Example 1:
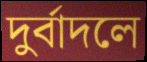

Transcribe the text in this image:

দুর্বাদলে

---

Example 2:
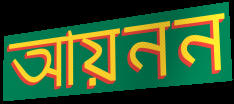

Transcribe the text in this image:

আয়নন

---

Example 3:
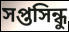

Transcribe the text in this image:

সপ্তসিন্ধু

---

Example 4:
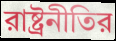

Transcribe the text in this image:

রাষ্ট্রনীতির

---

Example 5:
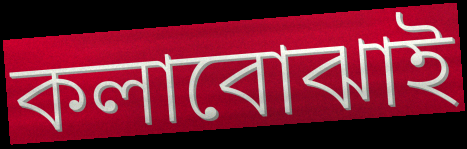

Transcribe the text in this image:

কলাবোঝাই